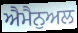
ਐਮੈਨੁਅਲ